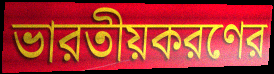
ভারতীয়করণের